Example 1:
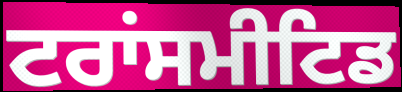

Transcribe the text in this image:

ਟਰਾਂਸਮੀਟਿਡ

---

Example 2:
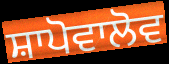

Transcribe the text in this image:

ਸ਼ਾਪੋਵਾਲੋਵ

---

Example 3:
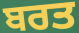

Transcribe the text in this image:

ਬਰਤ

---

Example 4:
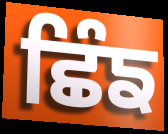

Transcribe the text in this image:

ਛਿੰਙ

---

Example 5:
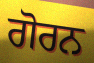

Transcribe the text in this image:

ਗੋਰਨ